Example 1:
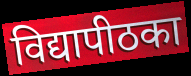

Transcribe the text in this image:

विद्यापीठका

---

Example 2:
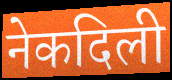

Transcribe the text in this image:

नेकदिली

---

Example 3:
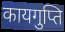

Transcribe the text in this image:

कायगुप्ति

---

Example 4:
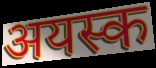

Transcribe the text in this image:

अयस्क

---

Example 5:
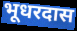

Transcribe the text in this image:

भूधरदास